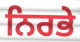
ਨਿਰਭੇ